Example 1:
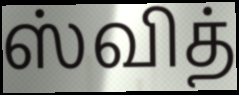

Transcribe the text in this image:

ஸ்வித்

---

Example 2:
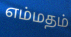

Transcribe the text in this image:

எம்மதம்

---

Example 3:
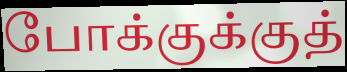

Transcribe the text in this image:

போக்குக்குத்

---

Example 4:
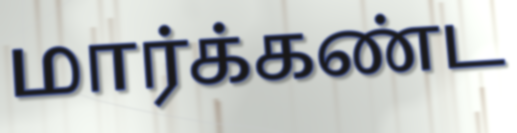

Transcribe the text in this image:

மார்க்கண்ட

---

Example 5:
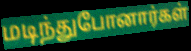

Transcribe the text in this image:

மடிந்துபோனார்கள்